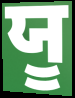
ਯੂ